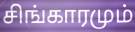
சிங்காரமும்